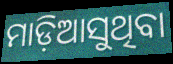
ମାଡ଼ିଆସୁଥିବା